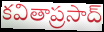
కవితాప్రసాద్